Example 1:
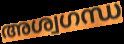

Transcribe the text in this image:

അശ്വഗന്ധ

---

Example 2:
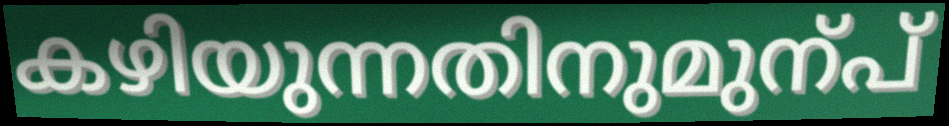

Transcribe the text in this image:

കഴിയുന്നതിനുമുന്പ്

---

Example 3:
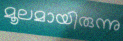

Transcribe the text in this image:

മൂലമായിരുന്നു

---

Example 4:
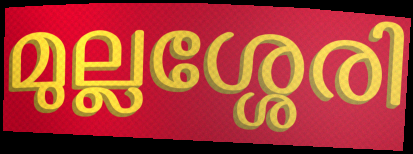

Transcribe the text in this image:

മുല്ലശ്ശേരി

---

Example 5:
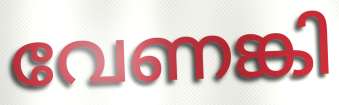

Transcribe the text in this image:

വേണങ്കി